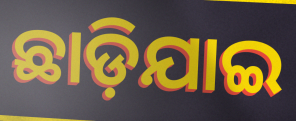
ଛାଡ଼ିଯାଇ